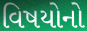
વિષયોનો